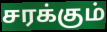
சரக்கும்